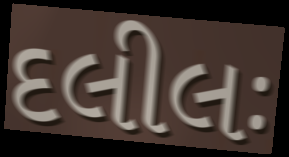
દલીલઃ